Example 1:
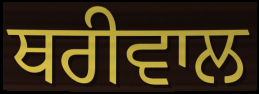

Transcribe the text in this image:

ਥਰੀਵਾਲ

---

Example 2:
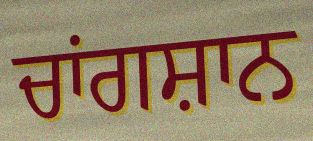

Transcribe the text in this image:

ਚਾਂਗਸ਼ਾਨ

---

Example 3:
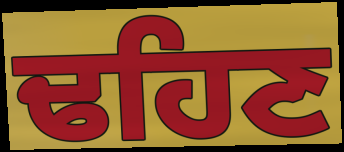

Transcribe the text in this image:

ਢਹਿਣ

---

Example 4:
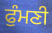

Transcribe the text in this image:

ਫੁੰਮਣੀ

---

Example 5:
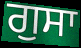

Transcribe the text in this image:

ਗੁਸਾ